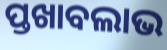
ପ୍ତଖାବଲାଭ